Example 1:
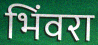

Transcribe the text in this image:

भिंवरा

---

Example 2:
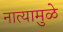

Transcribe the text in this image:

नात्यामुळे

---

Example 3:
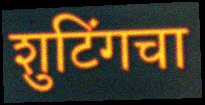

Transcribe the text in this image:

शुटिंगचा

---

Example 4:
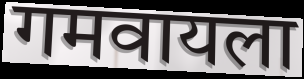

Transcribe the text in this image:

गमवायला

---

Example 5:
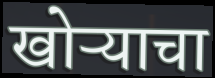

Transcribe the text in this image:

खोऱ्याचा